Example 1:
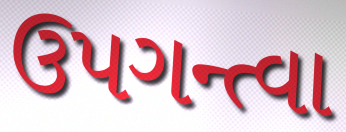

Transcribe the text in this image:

ઉપગન્ત્વા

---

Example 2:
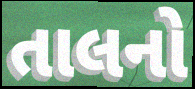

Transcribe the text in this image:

તાલનો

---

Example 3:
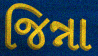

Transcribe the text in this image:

જિન્ના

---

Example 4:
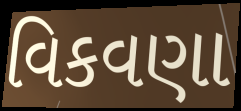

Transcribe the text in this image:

વિકવણા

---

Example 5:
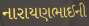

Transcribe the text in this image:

નારાયણભાઈની